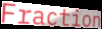
Fraction